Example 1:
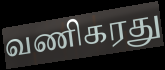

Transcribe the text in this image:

வணிகரது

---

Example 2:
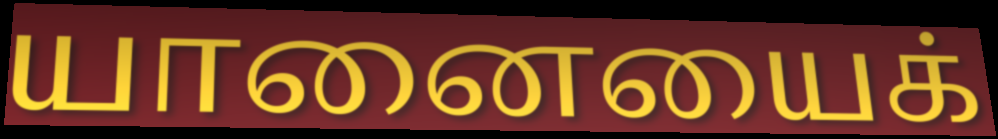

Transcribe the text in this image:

யானையைக்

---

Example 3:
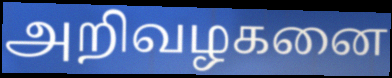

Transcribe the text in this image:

அறிவழகனை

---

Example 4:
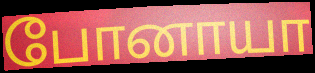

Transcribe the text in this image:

போனாயா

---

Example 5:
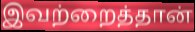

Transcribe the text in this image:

இவற்றைத்தான்